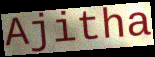
Ajitha